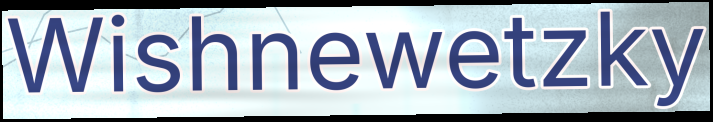
Wishnewetzky